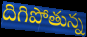
దిగిపోతున్న